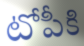
టోపీకి